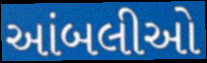
આંબલીઓ